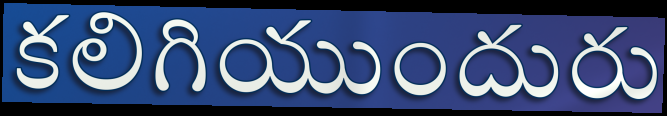
కలిగియుందురు